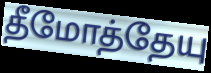
தீமோத்தேயு